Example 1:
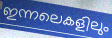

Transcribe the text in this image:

ഇന്നലെകളിലും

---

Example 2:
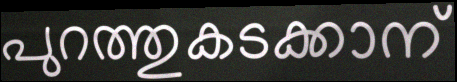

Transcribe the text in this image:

പുറത്തുകടക്കാന്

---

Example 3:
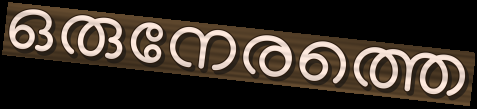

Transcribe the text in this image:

ഒരുനേരത്തെ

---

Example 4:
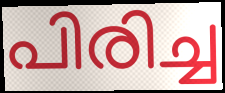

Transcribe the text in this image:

പിരിച്ച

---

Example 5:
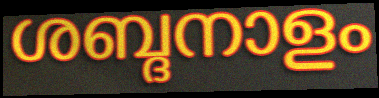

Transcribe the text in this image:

ശബ്ദനാളം